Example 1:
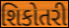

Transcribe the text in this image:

શિકોતરી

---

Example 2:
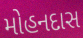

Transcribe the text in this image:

મોહનદાસ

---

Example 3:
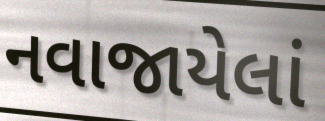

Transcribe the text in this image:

નવાજાયેલાં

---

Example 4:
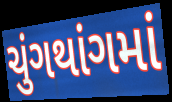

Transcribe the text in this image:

ચુંગથાંગમાં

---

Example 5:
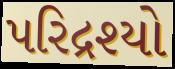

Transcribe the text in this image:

પરિદ્રશ્યો